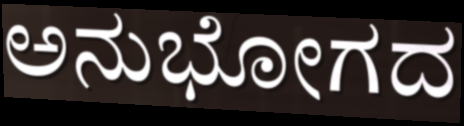
ಅನುಭೋಗದ